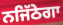
ਨਜਿੱਠੇਗਾ